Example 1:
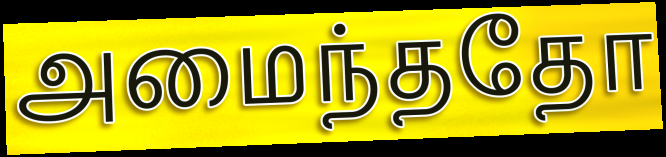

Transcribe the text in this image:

அமைந்ததோ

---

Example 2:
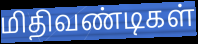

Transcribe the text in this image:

மிதிவண்டிகள்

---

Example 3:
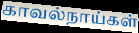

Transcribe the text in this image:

காவல்நாய்கள்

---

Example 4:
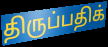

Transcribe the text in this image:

திருப்பதிக்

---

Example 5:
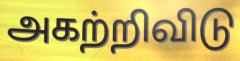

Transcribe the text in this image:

அகற்றிவிடு